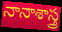
నానాశాస్త్ర